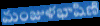
మంజుళభాషిణి